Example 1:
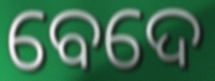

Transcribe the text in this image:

ବେଦେ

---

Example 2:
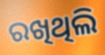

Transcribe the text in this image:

ରଖିଥିଲି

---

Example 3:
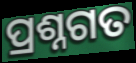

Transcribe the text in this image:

ପ୍ରଶ୍ନଗତ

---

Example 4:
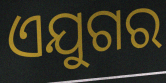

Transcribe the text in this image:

ଏଯୁଗର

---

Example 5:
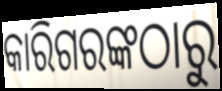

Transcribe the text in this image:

କାରିଗରଙ୍କଠାରୁ